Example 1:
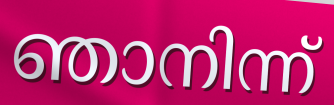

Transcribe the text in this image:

ഞാനിന്ന്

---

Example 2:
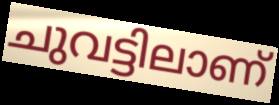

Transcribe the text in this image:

ചുവട്ടിലാണ്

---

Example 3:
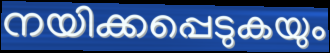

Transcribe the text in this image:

നയിക്കപ്പെടുകയും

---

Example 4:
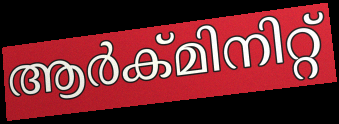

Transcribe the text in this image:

ആർക്മിനിറ്റ്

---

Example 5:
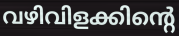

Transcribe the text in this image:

വഴിവിളക്കിന്റെ